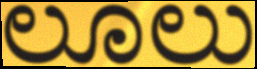
ಲೂಲು